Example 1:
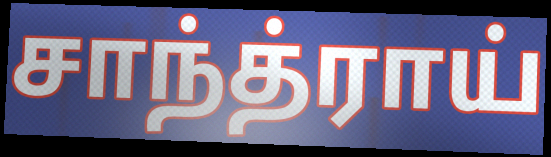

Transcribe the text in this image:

சாந்த்ராய்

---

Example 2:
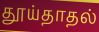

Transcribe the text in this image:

தூய்தாதல்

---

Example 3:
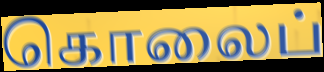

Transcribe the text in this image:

கொலைப்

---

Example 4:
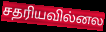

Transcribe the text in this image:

சதரியவில்னல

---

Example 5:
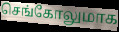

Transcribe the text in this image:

செங்கோலுமாக